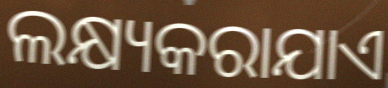
ଲକ୍ଷ୍ୟକରାଯାଏ